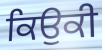
ਕਿਉਕੀ